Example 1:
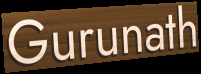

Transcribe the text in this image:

Gurunath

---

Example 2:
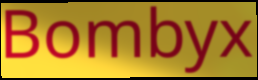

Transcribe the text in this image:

Bombyx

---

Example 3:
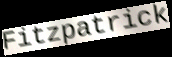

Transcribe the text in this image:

Fitzpatrick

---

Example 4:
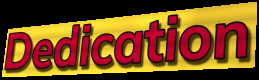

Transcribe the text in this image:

Dedication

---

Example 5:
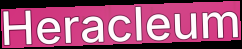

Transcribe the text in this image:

Heracleum